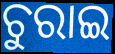
ଚୁରାଇ